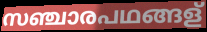
സഞ്ചാരപഥങ്ങള്